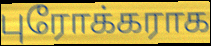
புரோக்கராக